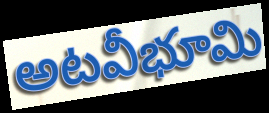
అటవీభూమి